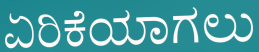
ಏರಿಕೆಯಾಗಲು